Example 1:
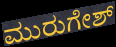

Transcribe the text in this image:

ಮುರುಗೇಶ್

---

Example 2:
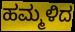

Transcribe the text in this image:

ಹಮ್ಮಳಿದ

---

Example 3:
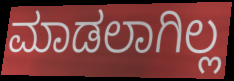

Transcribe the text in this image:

ಮಾಡಲಾಗಿಲ್ಲ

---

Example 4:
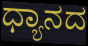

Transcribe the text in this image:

ಧ್ಯಾನದ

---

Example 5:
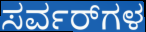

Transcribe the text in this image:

ಸರ್ವರ್‌ಗಳ